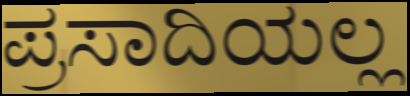
ಪ್ರಸಾದಿಯಲ್ಲ